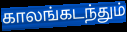
காலங்கடந்தும்